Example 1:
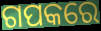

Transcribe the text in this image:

ଗପକରେ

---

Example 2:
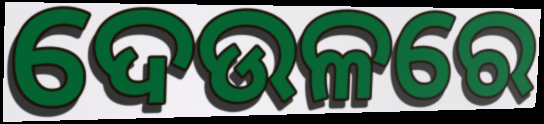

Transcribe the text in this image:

ଦେଉଳରେ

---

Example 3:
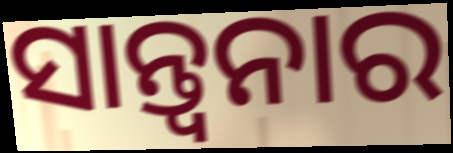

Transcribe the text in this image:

ସାନ୍ତ୍ବନାର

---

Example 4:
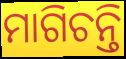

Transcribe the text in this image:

ମାଗିଚନ୍ତି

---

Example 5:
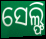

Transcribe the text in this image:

ସେଲ୍ଫି